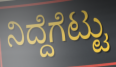
ನಿದ್ದೆಗೆಟ್ಟು